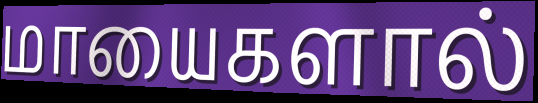
மாயைகளால்